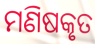
ମଣିଷକୃତ